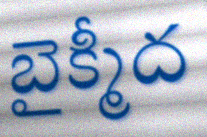
బైక్మీద